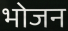
भोजन